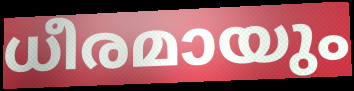
ധീരമായും